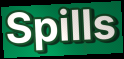
Spills